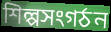
শিল্পসংগঠন